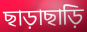
ছাড়াছাড়ি